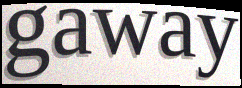
gaway